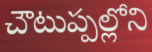
చౌటుప్పల్లోని